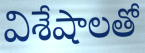
విశేషాలతో